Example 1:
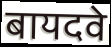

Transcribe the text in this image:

बायदवे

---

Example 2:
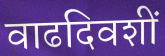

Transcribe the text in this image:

वाढदिवशीं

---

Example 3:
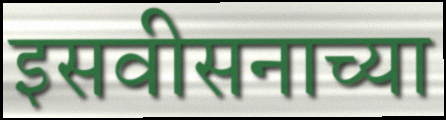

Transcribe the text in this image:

इसवीसनाच्या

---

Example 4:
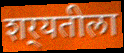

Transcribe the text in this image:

शर्यतीला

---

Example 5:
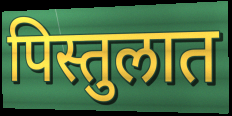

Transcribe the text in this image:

पिस्तुलात